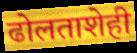
ढोलताशेही